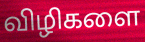
விழிகளை